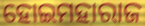
ହୋଇମହାରାଜ